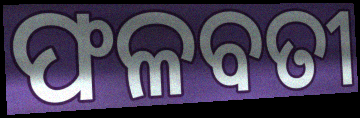
ଫଳବତୀ